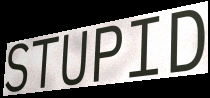
STUPID